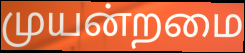
முயன்றமை